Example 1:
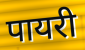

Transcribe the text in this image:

पायरी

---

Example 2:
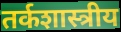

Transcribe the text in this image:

तर्कशास्त्रीय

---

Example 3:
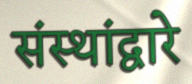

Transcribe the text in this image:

संस्थांद्वारे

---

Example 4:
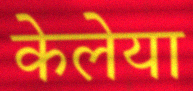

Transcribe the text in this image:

केलेया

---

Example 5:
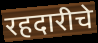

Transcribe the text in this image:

रहदारीचे